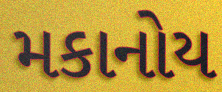
મકાનોય